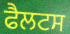
ਫੈਲਟਸ